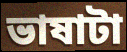
ভাষাটা